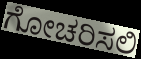
ಗೋಚರಿಸಲಿ